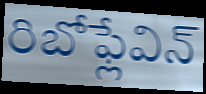
రిబోఫ్లేవిన్